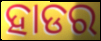
ହାଡର